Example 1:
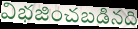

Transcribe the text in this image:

విభజించబడినది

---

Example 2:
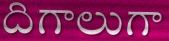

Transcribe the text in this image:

దిగాలుగా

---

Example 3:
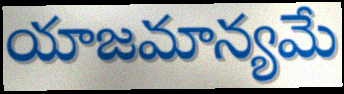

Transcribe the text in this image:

యాజమాన్యమే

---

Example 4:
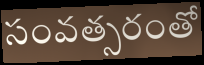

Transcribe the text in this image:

సంవత్సరంతో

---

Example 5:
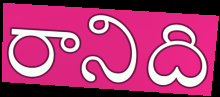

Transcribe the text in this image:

రానిది